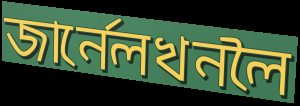
জাৰ্নেলখনলৈ